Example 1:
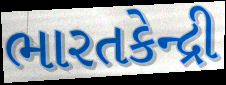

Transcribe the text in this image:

ભારતકેન્દ્રી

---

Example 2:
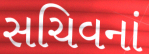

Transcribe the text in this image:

સચિવનાં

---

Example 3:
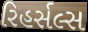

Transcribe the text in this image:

રિહર્સલ્સ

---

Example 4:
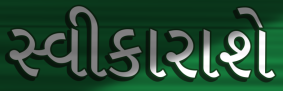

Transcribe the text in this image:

સ્વીકારાશે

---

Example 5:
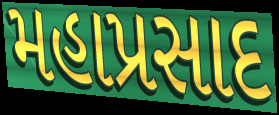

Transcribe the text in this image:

મહાપ્રસાદ